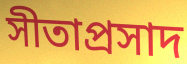
সীতাপ্রসাদ